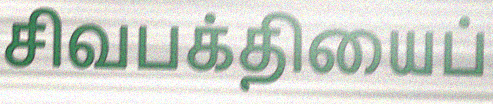
சிவபக்தியைப்